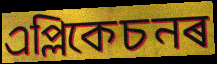
এপ্লিকেচনৰ